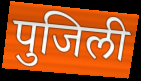
पुजिली